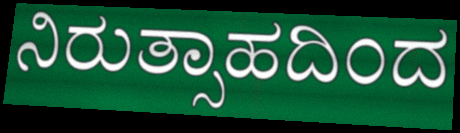
ನಿರುತ್ಸಾಹದಿಂದ